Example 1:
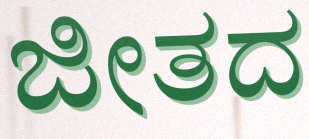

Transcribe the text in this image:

ಜೀತದ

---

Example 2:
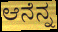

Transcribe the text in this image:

ಆನೆನ್ನ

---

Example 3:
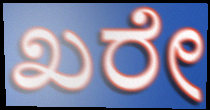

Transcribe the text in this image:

ಖರೇ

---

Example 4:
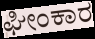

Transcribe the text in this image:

ಘೀಂಕಾರ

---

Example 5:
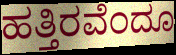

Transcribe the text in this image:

ಹತ್ತಿರವೆಂದೂ